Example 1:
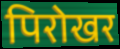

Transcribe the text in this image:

पिरोखर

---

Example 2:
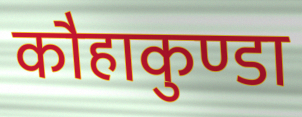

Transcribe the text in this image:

कौहाकुण्डा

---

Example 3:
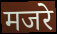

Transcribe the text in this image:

मजरे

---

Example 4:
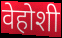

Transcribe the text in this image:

वेहोशी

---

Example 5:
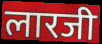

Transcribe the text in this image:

लारजी